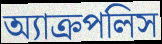
অ্যাক্রপলিস